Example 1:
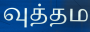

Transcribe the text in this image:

வுத்தம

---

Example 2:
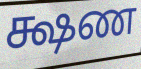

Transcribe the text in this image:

க்ஷண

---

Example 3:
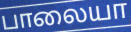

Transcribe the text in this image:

பாலையா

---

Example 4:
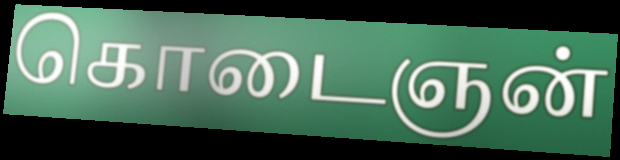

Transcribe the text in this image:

கொடைஞன்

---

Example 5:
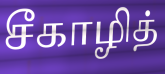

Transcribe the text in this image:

சீகாழித்